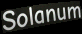
Solanum